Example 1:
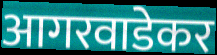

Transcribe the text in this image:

आगरवाडेकर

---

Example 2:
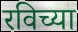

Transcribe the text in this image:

रविच्या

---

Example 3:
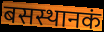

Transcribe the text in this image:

बसस्थानकं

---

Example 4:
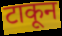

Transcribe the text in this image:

टाकून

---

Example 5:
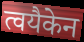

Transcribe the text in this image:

त्वयैकेन